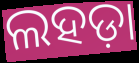
ଲହଡ଼ା